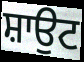
ਸ਼ਾਉਟ